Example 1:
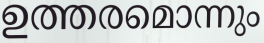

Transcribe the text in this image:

ഉത്തരമൊന്നും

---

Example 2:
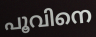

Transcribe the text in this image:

പൂവിനെ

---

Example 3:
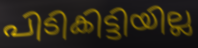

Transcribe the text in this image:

പിടികിട്ടിയില്ല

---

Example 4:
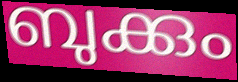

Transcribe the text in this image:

ബുക്കും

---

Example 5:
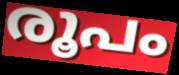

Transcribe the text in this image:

രൂപം